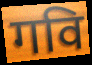
गवि